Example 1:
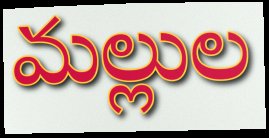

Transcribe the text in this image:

మల్లుల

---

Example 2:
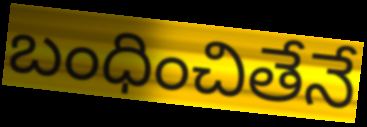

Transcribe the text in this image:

బంధించితేనే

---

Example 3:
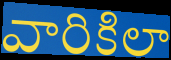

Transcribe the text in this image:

వారికిలా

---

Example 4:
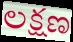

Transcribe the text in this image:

లక్షణ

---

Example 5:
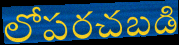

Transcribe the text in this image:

లోపరచబడి